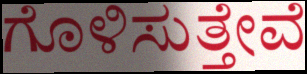
ಗೊಳಿಸುತ್ತೇವೆ